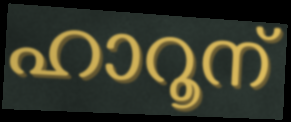
ഹാറൂന്